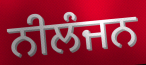
ਨੀਲੰਜਨ